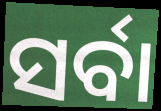
ସର୍ବା